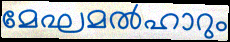
മേഘമൽഹാറും